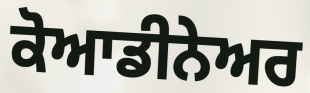
ਕੋਆਡੀਨੇਅਰ